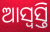
ଆସ୍ୱସ୍ତି